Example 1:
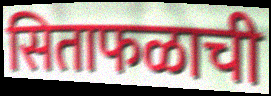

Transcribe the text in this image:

सिताफळाची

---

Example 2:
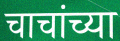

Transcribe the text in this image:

चाचांच्या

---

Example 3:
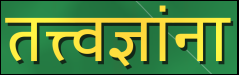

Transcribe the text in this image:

तत्त्वज्ञांना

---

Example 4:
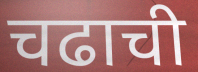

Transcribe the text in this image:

चढाची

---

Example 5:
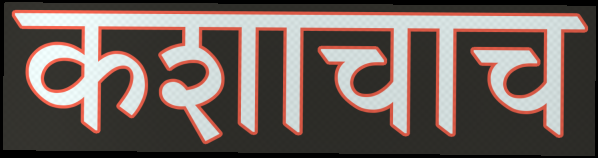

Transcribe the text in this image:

कशाचाच